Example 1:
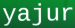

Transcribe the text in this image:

yajur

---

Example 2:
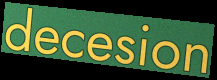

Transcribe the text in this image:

decesion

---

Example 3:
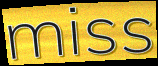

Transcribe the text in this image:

miss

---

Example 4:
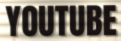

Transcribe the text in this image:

YOUTUBE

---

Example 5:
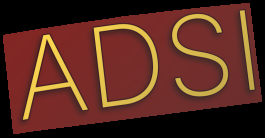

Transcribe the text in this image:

ADSI